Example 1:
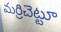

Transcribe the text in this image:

మర్రిచెట్టూ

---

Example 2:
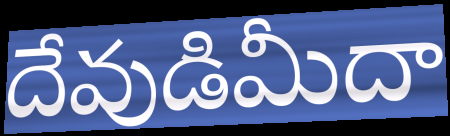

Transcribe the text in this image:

దేవుడిమీదా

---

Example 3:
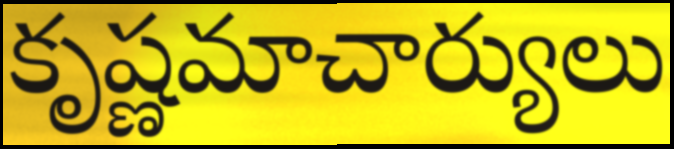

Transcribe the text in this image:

కృష్ణమాచార్యులు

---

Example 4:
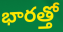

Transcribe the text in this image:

భారత్తో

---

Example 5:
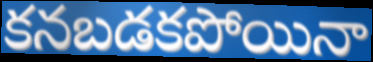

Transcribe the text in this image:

కనబడకపోయినా